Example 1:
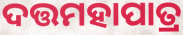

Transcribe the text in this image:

ଦତ୍ତମହାପାତ୍ର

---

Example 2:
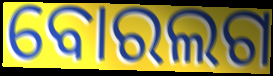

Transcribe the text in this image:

ବୋରଲଗ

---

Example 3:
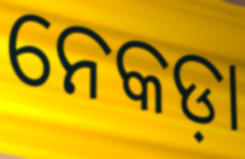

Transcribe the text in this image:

ନେକଡ଼ା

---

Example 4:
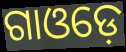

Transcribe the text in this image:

ଗାଓଡ଼େ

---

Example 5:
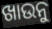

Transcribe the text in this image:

ଖାଉନୁ